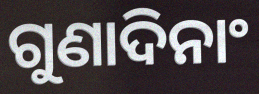
ଗୁଣାଦିନାଂ